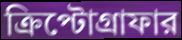
ক্রিপ্টোগ্রাফার